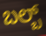
ಬಲ್ಬ್